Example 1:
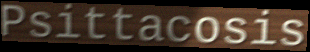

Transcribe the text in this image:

Psittacosis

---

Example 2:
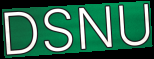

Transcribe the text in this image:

DSNU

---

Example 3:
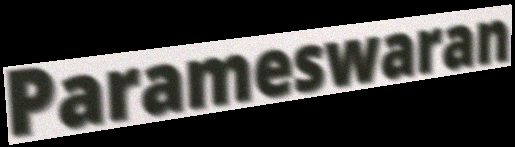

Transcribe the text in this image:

Parameswaran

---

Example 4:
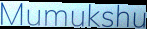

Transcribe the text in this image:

Mumukshu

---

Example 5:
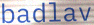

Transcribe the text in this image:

badlav